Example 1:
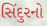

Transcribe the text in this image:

સિંદુરનો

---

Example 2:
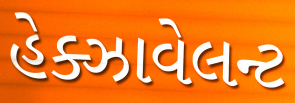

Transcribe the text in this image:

હેક્ઝાવેલન્ટ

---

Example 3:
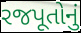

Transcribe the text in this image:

રજપૂતોનું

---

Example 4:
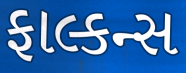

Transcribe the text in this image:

ફાલ્કન્સ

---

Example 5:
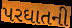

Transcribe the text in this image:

પરઘાતની